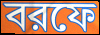
বরফে